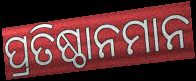
ପ୍ରତିଷ୍ଠାନମାନ